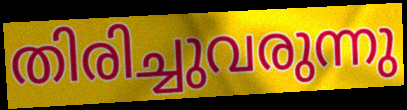
തിരിച്ചുവരുന്നു